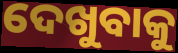
ଦେଖୁବାକୁ